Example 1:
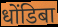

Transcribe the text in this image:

धोंडिबा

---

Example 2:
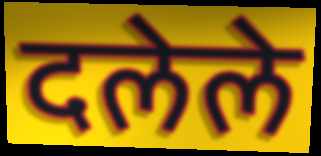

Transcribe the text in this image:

दलेले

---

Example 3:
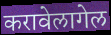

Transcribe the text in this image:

करावेलागेल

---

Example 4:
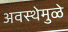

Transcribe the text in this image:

अवस्थेमुळे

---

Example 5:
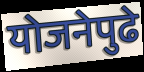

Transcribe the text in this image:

योजनेपुढे